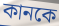
কানকে